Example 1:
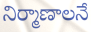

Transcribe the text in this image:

నిర్మాణాలనే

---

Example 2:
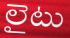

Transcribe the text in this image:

లైటు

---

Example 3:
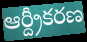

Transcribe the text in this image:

ఆర్ద్రీకరణ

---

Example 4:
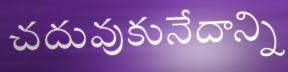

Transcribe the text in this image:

చదువుకునేదాన్ని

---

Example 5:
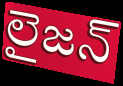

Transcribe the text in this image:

లైజన్